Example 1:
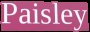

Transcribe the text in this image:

Paisley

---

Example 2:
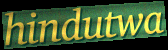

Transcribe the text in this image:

hindutwa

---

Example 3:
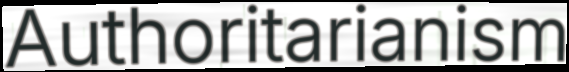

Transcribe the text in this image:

Authoritarianism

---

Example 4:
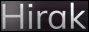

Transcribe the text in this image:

Hirak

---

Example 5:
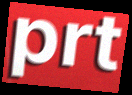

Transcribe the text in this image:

prt